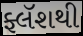
ફ્લૅશથી